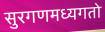
सुरगणमध्यगतो